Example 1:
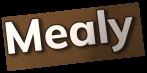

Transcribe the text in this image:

Mealy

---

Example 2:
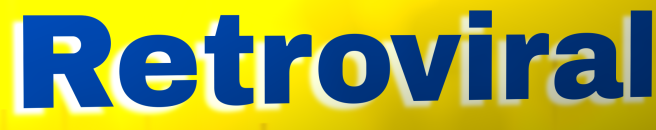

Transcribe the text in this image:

Retroviral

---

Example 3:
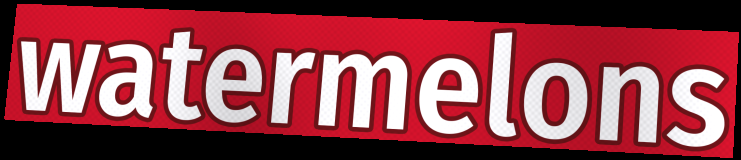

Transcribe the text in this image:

watermelons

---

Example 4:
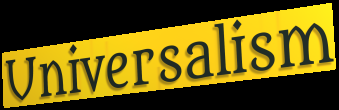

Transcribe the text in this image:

Universalism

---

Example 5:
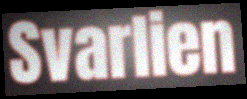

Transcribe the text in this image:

Svarlien